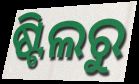
ଷ୍ଟିଲରୁ